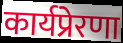
कार्यप्रेरणा